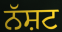
ਨੱਸ਼ਟ